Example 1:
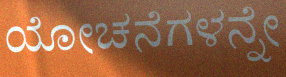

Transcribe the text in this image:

ಯೋಚನೆಗಳನ್ನೇ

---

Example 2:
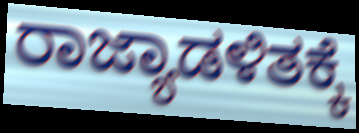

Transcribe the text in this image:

ರಾಜ್ಯಾಡಳಿತಕ್ಕೆ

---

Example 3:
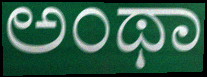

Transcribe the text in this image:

ಅಂಥಾ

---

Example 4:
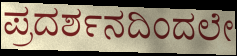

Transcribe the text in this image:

ಪ್ರದರ್ಶನದಿಂದಲೇ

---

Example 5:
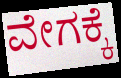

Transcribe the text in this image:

ವೇಗಕ್ಕೆ